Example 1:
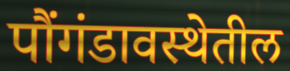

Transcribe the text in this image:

पौंगंडावस्थेतील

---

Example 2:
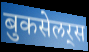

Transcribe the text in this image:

बुकसेलर्स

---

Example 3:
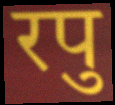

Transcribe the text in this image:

रपु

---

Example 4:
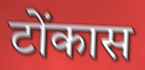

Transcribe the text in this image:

टोंकास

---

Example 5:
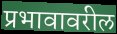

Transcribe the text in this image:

प्रभावावरील